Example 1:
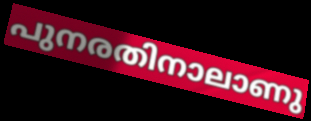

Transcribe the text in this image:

പുനരതിനാലാണു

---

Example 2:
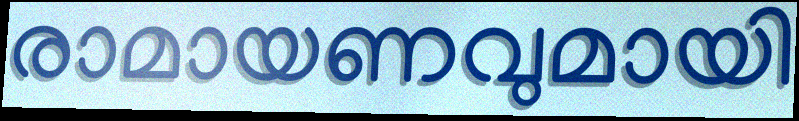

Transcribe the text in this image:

രാമായണവുമായി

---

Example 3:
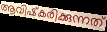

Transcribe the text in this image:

ആവിഷ്‌കരിക്കുന്നത്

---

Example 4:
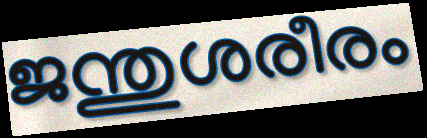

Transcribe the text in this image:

ജന്തുശരീരം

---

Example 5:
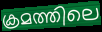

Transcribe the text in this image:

ക്രമത്തിലെ